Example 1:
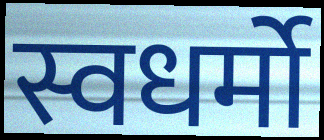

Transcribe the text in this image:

स्वधर्मो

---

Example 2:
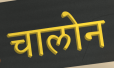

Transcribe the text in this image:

चालोन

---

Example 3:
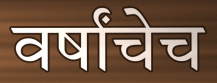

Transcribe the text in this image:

वर्षांचेच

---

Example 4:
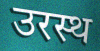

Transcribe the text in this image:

उरस्थ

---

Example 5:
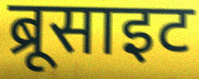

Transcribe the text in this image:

ब्रूसाइट